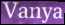
Vanya